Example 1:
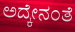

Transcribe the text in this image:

ಅದ್ಕೇನಂತೆ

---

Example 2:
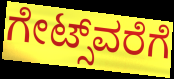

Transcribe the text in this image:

ಗೇಟ್ಸ್‌ವರೆಗೆ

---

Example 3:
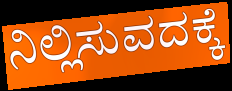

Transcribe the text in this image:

ನಿಲ್ಲಿಸುವದಕ್ಕೆ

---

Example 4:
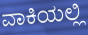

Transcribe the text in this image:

ವಾಕಿಯಲ್ಲಿ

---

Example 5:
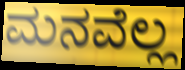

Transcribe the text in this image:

ಮನವೆಲ್ಲ